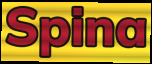
Spina